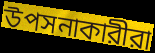
উপসনাকারীরা